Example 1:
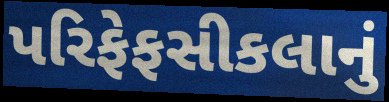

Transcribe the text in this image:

પરિફેફસીકલાનું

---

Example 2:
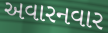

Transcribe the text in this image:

અવારનવાર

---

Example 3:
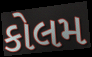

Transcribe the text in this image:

કોલમ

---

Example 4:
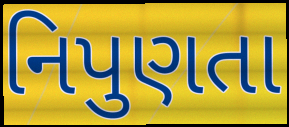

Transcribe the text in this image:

નિપુણતા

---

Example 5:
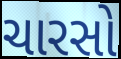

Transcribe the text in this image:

ચારસો